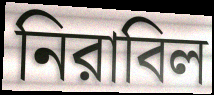
নিরাবিল